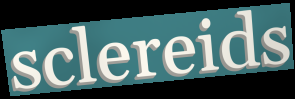
sclereids